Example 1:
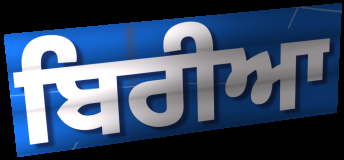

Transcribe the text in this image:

ਬਿਰੀਆ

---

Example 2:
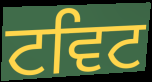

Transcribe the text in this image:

ਟਵਿਟ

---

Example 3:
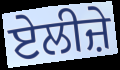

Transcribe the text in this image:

ਏਲੀਜ਼ੇ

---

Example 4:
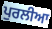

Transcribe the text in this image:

ਪੁਰਲੀਆ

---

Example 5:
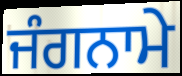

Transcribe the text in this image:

ਜੰਗਨਾਮੇ